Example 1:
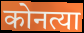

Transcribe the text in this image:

कोनत्या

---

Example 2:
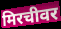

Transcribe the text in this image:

मिरचीवर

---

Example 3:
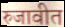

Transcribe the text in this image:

रुजावीत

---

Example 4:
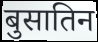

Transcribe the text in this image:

बुसातिन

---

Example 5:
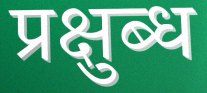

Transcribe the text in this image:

प्रक्षुब्ध